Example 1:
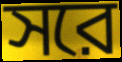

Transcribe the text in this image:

সরে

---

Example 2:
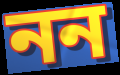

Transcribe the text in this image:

নন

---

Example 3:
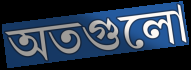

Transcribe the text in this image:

অতগুলো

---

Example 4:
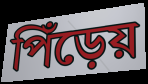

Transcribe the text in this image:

পিঁড়েয়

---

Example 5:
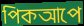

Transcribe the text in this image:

পিকআপে